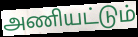
அணியட்டும்